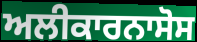
ਅਲੀਕਾਰਨਾਸੋਸ